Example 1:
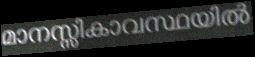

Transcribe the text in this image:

മാനസ്സികാവസ്ഥയിൽ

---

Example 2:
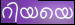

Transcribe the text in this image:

റിയയെ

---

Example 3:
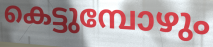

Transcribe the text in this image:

കെട്ടുമ്പോഴും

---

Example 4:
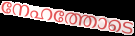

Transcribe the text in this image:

നേഹത്തോടെ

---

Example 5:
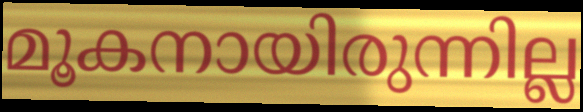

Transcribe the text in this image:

മൂകനായിരുന്നില്ല